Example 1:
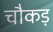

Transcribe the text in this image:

चौकड़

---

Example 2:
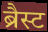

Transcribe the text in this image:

ब्रैस्ट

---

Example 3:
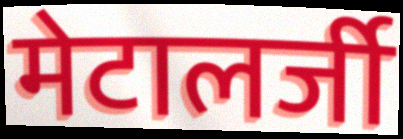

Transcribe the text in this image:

मेटालर्जी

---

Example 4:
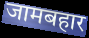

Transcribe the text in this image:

जामबहार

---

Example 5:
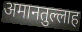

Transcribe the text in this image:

अमानतुल्लाह